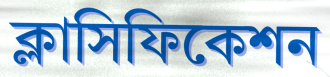
ক্লাসিফিকেশন